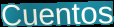
Cuentos